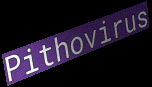
Pithovirus